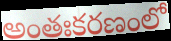
అంతఃకరణంలో